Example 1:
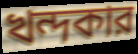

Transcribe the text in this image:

খন্দকার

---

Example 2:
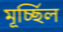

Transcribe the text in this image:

মূর্চ্ছিল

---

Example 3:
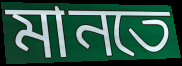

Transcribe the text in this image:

মানতে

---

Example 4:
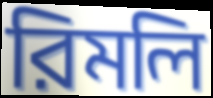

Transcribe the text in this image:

রিমলি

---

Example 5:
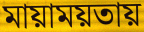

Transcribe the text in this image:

মায়াময়তায়